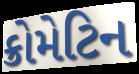
ક્રોમેટિન